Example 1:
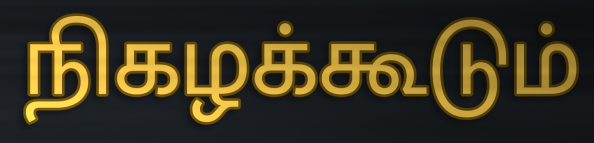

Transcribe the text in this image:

நிகழக்கூடும்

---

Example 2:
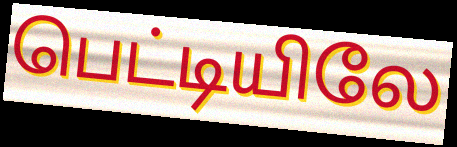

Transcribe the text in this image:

பெட்டியிலே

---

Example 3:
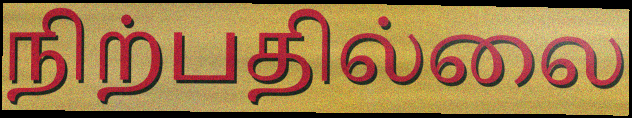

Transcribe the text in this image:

நிற்பதில்லை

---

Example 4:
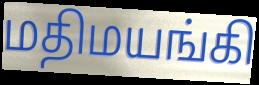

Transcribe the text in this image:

மதிமயங்கி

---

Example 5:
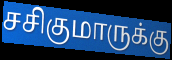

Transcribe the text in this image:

சசிகுமாருக்கு